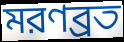
মরণব্রত